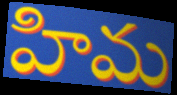
హిమ